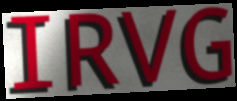
IRVG